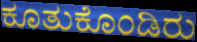
ಕೂತುಕೊಂಡಿರು